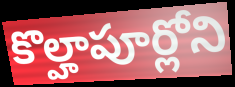
కొల్హాపూర్లోని